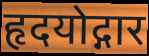
हृदयोद्गार